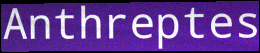
Anthreptes